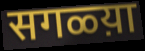
सगळ्य़ा